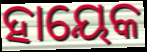
ହାୟେକ